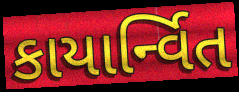
કાયાર્ન્વિત